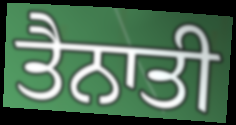
ਤੈਨਾਤੀ